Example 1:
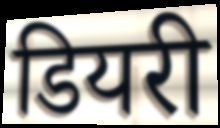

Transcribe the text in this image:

डियरी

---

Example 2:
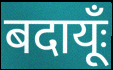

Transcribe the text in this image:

बदायूँः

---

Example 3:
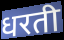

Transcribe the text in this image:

धरती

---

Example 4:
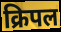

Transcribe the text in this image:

क्रिपल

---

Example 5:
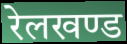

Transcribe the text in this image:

रेलखण्ड